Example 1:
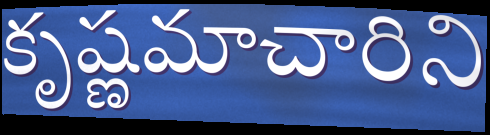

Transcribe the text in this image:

కృష్ణమాచారిని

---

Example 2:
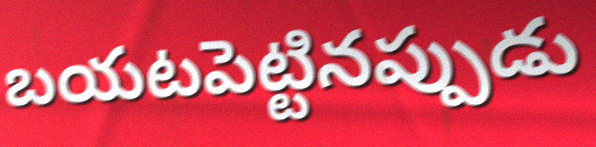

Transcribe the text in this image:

బయటపెట్టినప్పుడు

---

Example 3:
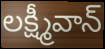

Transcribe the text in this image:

లక్ష్మీవాన్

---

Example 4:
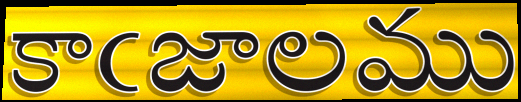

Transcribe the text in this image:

కాఁజాలము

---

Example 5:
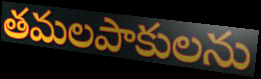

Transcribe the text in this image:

తమలపాకులను